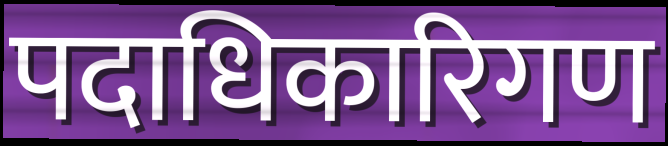
पदाधिकारिगण